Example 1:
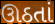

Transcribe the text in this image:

ઊઠતાં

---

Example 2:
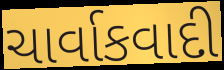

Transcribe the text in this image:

ચાર્વાકવાદી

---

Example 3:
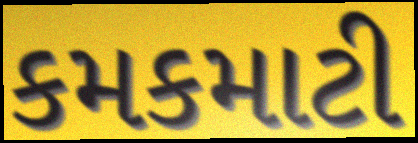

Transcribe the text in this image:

કમકમાટી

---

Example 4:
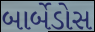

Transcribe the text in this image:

બાર્બેડોસ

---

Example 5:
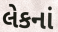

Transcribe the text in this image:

લેકનાં